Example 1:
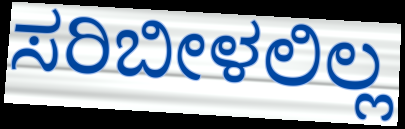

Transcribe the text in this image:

ಸರಿಬೀಳಲಿಲ್ಲ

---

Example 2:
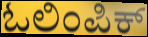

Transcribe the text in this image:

ಓಲಿಂಪಿಕ್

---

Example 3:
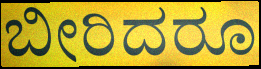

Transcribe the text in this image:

ಬೀರಿದರೂ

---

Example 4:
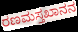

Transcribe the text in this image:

ರಣಮಸ್ತಖಾನನ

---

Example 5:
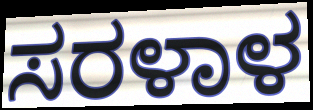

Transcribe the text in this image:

ಸರಳಾಳ